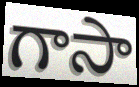
గాసా